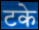
टके